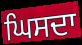
ਘਿਸਦਾ